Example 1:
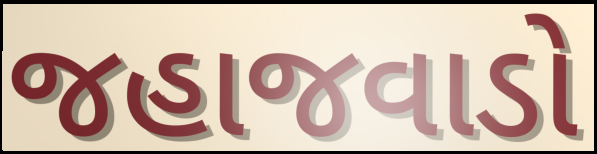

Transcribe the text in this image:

જહાજવાડો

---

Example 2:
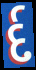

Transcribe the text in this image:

ર્દ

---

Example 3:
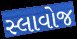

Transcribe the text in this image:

સ્લાવોજ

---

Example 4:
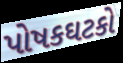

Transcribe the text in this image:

પોષકઘટકો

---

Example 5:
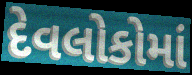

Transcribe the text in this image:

દેવલોકોમાં